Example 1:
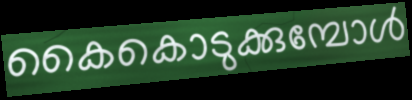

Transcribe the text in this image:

കൈകൊടുക്കുമ്പോൾ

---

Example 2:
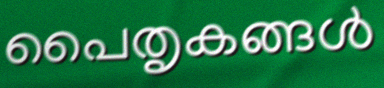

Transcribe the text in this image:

പൈതൃകങ്ങൾ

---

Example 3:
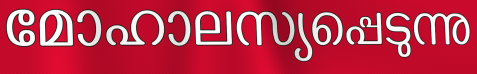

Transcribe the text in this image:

മോഹാലസ്യപ്പെടുന്നു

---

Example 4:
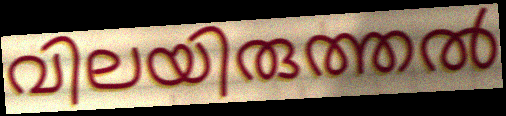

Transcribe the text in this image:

വിലയിരുത്തൽ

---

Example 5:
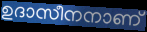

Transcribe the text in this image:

ഉദാസീനനാണ്